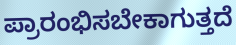
ಪ್ರಾರಂಭಿಸಬೇಕಾಗುತ್ತದೆ